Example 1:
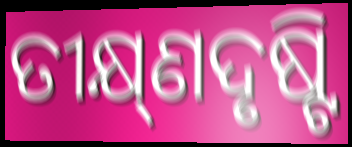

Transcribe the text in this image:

ତୀକ୍ଷ୍‌ଣଦୃଷ୍ଟି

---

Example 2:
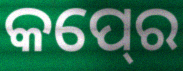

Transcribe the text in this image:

କପ୍‍ରେ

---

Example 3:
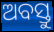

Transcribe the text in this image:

ଅବସ୍ତୁ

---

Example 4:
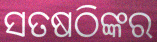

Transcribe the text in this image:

ସତଷଠିଙ୍କର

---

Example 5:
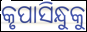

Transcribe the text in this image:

କୃପାସିନ୍ଧୁକୁ